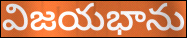
విజయభాను